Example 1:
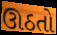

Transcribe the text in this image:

ઊઠતો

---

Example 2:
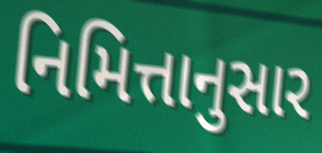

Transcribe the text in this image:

નિમિત્તાનુસાર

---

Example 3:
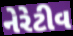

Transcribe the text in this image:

નેરેટીવ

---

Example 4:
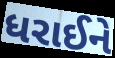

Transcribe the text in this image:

ધરાઈને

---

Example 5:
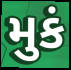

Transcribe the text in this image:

મુકં